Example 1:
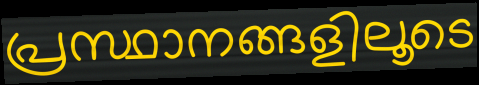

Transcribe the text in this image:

പ്രസ്ഥാനങ്ങളിലൂടെ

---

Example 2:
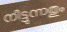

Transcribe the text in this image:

നീട്ടുന്നതും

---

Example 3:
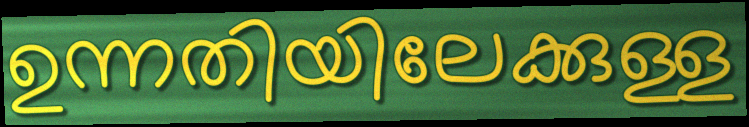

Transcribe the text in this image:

ഉന്നതിയിലേക്കുള്ള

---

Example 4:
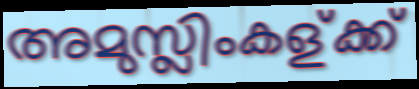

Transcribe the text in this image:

അമുസ്ലിംകള്ക്ക്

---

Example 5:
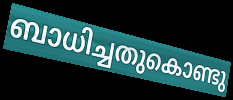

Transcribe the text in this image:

ബാധിച്ചതുകൊണ്ടു